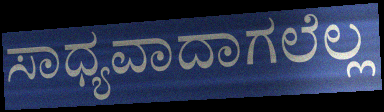
ಸಾಧ್ಯವಾದಾಗಲೆಲ್ಲ